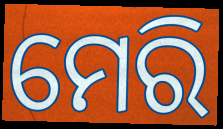
ମେରି